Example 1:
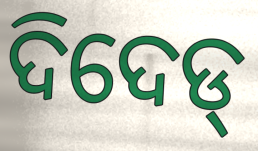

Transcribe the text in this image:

ଦିଦେଡ୍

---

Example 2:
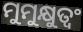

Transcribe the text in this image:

ମୁମୁକ୍ଷୁତ୍ୱଂ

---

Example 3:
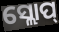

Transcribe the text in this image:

ସ୍ଲୋପ୍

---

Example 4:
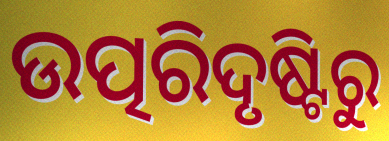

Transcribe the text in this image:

ଉତ୍ପରିଦୃଷ୍ଟିରୁ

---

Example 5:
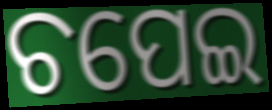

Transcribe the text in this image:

ଚପେଇ